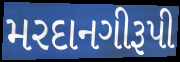
મરદાનગીરૂપી